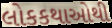
લોકકથાઓથી